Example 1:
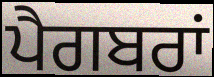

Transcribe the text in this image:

ਪੈਗਬਰਾਂ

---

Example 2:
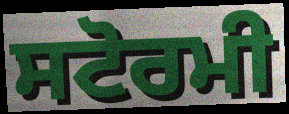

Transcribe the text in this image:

ਸਟੋਰਮੀ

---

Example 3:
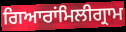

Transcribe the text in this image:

ਗਿਆਰਾਂਮਿਲੀਗ੍ਰਾਮ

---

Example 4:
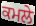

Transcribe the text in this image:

ਕਮਲੇ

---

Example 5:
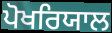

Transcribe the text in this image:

ਪੋਖਰਿਯਾਲ